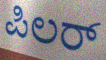
ಪಿಲರ್